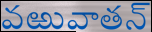
వఱువాతన్